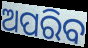
ଅପରିବ